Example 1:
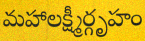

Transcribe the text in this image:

మహాలక్ష్మీర్గృహం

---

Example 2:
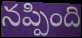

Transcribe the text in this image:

నప్పింది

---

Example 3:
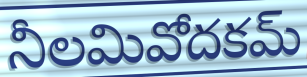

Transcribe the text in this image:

నీలమివోదకమ్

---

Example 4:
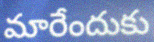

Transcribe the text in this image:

మారేందుకు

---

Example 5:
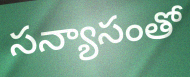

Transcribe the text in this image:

సన్యాసంతో